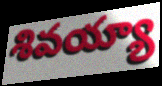
శివయ్యా